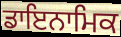
ਡਾਇਨਾਮਿਕ